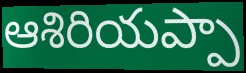
ఆశిరియప్పా